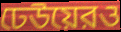
ঢেউয়েরও